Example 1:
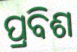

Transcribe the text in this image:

ପ୍ରବିଶ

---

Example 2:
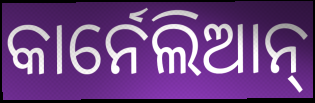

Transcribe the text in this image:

କାର୍ନେଲିଆନ୍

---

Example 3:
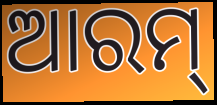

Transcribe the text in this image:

ଆରମ୍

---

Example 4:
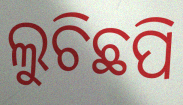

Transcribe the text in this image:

ଲୁଚିଛପି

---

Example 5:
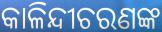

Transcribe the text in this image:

କାଳିନ୍ଦୀଚରଣଙ୍କ